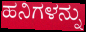
ಹನಿಗಳನ್ನು